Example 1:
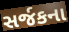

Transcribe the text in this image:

સર્જકના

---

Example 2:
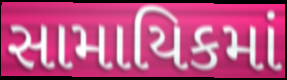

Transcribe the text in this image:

સામાયિકમાં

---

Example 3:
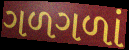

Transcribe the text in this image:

ગળગળાં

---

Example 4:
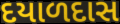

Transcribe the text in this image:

દયાળદાસ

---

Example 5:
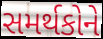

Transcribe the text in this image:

સમર્થકોને